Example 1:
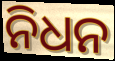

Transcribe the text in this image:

ନିଧନ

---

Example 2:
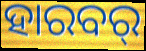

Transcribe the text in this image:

ହାରବର୍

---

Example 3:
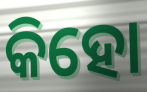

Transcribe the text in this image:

କିହୋ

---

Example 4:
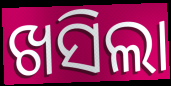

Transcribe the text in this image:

ଖସିଲା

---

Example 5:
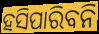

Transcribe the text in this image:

ହସିପାରିବନି